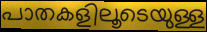
പാതകളിലൂടെയുള്ള